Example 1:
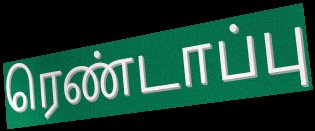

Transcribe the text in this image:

ரெண்டாப்பு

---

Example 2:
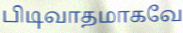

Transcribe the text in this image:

பிடிவாதமாகவே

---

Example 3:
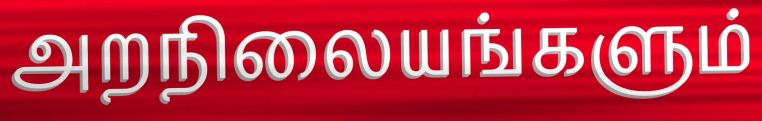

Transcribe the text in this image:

அறநிலையங்களும்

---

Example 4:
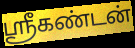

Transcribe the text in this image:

ஸ்ரீகண்டன்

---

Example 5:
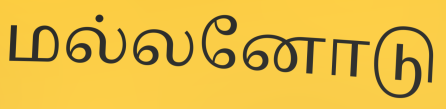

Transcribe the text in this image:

மல்லனோடு